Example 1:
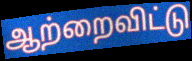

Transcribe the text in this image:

ஆற்றைவிட்டு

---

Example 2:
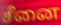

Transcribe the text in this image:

சீனை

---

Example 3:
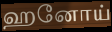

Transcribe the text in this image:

ஹனோய்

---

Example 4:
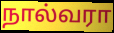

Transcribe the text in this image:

நால்வரா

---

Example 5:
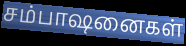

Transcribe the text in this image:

சம்பாஷனைகள்